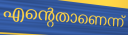
എന്റെതാണെന്ന്